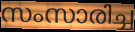
സംസാരിച്ച